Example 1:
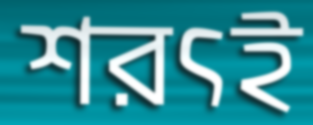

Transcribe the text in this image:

শরৎই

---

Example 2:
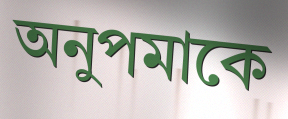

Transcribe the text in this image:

অনুপমাকে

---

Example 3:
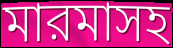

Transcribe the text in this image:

মারমাসহ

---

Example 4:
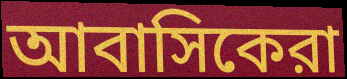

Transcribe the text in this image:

আবাসিকেরা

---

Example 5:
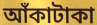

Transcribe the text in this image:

আঁকাটাকা